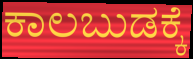
ಕಾಲಬುಡಕ್ಕೆ